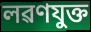
লৱণযুক্ত